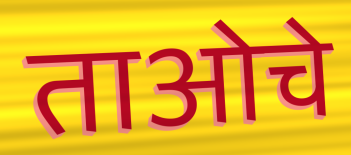
ताओचे